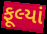
ફૂલ્યાં